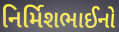
નિર્મિશભાઈનો